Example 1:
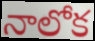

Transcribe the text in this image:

నాలోక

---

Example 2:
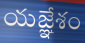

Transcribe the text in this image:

యజ్ఞేశం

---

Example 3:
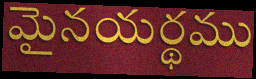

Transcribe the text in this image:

మైనయర్థము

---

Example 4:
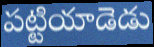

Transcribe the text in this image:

పట్టియాడెడు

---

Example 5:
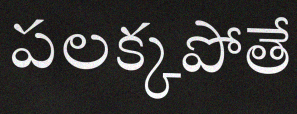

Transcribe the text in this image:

పలక్కపోతే